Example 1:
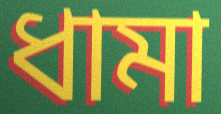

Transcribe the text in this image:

ধামা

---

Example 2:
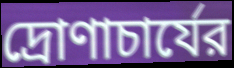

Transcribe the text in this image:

দ্রোণাচার্যের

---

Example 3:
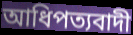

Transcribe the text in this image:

আধিপত্যবাদী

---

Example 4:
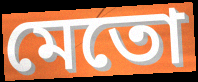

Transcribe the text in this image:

মেতো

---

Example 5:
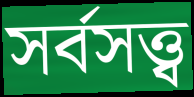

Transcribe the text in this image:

সর্বসত্ত্ব